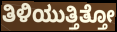
ತಿಳಿಯುತ್ತಿತ್ತೋ